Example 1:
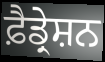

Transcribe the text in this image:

ਫ਼ੈਡ੍ਰੇਸ਼ਨ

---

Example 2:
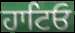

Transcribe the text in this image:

ਹਾਟਿਓ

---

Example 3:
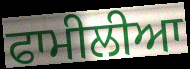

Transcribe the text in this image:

ਫਾਮੀਲੀਆ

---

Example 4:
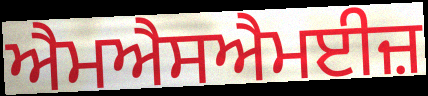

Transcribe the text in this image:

ਐਮਐਸਐਮਈਜ਼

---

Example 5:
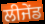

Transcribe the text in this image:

ਲੀਜੇਂਡ